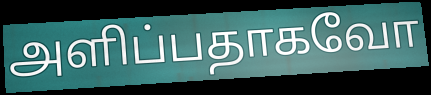
அளிப்பதாகவோ